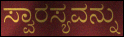
ಸ್ವಾರಸ್ಯವನ್ನು